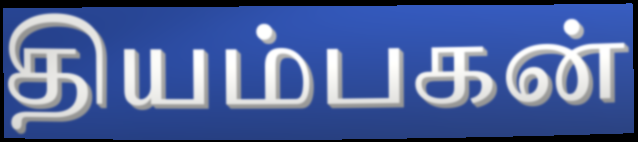
தியம்பகன்